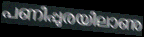
പണിപ്പുരയിലാണു